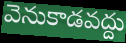
వెనుకాడవద్దు